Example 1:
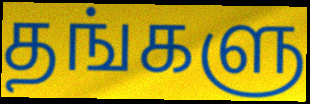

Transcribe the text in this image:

தங்களு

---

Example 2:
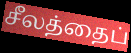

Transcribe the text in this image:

சீலத்தைப்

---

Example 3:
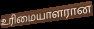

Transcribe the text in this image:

உரிமையாளரான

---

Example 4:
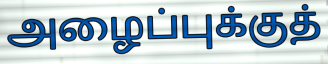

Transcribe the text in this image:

அழைப்புக்குத்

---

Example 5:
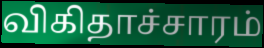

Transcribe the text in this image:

விகிதாச்சாரம்